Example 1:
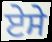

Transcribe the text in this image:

ਏਸੇ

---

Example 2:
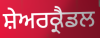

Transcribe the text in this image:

ਸ਼ੇਅਰਕ੍ਰੈਡਲ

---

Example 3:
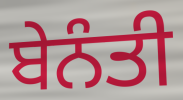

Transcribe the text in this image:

ਬੇਨੰਤੀ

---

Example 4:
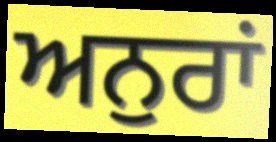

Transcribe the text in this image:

ਅਨੁਰਾਂ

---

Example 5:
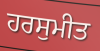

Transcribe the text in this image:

ਹਰਸੁਮੀਤ